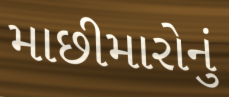
માછીમારોનું